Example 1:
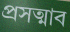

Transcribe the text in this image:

প্রসত্মাব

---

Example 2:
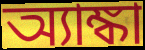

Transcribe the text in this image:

অ্যাঙ্কা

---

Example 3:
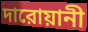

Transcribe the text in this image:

দারোয়ানী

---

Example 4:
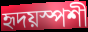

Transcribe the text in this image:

হৃদয়স্পশী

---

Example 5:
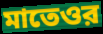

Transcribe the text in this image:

মাতেওর